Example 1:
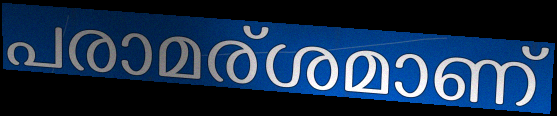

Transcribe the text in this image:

പരാമര്ശമാണ്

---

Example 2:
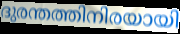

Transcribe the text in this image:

ദുരന്തത്തിനിരയായി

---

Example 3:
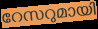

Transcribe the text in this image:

റേസറുമായി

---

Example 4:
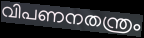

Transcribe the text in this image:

വിപണനതന്ത്രം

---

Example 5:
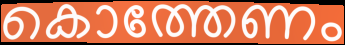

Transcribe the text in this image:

കൊത്തേണം